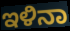
ಇಳಿನಾ